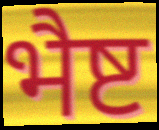
भैष्ट